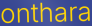
onthara